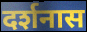
दर्शनास